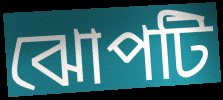
ঝোপটি